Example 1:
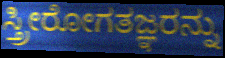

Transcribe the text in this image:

ಸ್ತ್ರೀರೋಗತಜ್ಞರನ್ನು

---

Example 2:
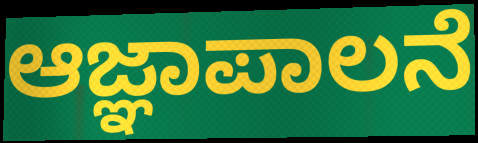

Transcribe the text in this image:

ಆಜ್ಞಾಪಾಲನೆ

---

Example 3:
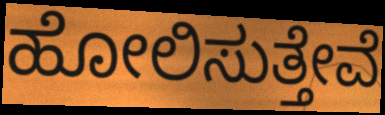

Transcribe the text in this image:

ಹೋಲಿಸುತ್ತೇವೆ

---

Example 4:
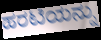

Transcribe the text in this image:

ಹರಟೆಯನ್ನು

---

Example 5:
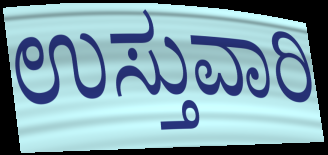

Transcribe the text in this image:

ಉಸ್ತುವಾರಿ